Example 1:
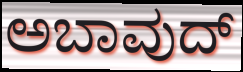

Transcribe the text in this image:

ಅಬಾವುದ್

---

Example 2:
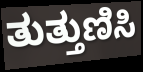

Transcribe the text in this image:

ತುತ್ತುಣಿಸಿ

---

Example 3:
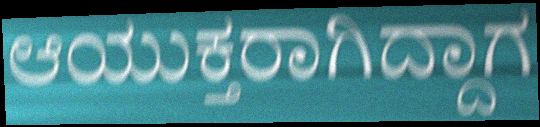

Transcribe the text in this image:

ಆಯುಕ್ತರಾಗಿದ್ದಾಗ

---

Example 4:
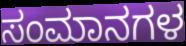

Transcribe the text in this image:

ಸಂಮಾನಗಳ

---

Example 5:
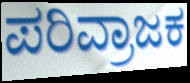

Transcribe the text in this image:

ಪರಿವ್ರಾಜಕ